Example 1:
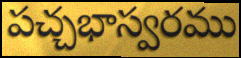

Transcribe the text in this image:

పచ్చభాస్వరము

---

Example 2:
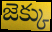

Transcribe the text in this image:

జెక్కు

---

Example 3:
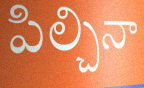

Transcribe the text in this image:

పిల్చినా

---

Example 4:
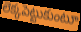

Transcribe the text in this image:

లెక్కపెట్టుకుంటూ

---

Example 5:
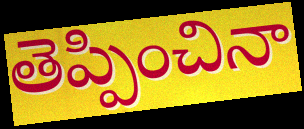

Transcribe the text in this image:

తెప్పించినా